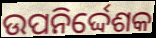
ଉପନିର୍ଦ୍ଦେଶକ